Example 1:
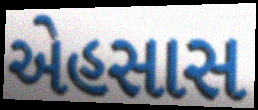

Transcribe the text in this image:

એહસાસ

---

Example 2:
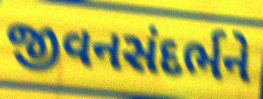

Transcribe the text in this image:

જીવનસંદર્ભને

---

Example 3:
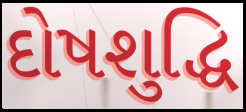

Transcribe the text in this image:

દોષશુદ્ધિ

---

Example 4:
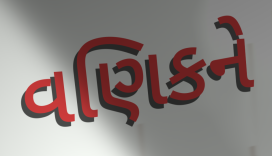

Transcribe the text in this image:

વણિકને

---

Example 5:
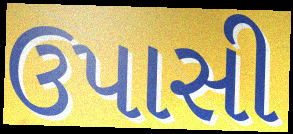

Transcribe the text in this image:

ઉપાસી